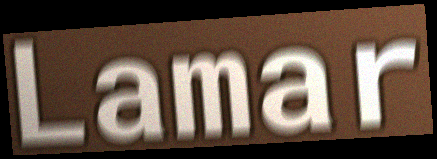
Lamar